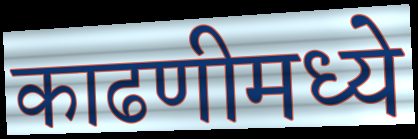
काढणीमध्ये